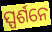
ସ୍ପର୍ଶନେ